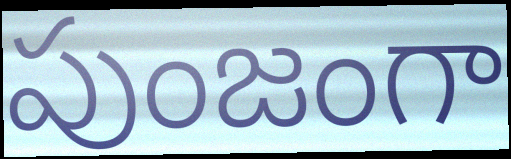
పుంజంగా